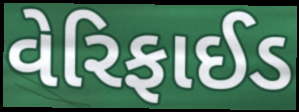
વેરિફાઈડ